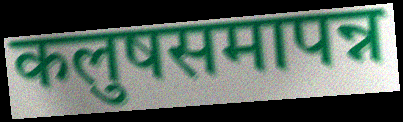
कलुषसमापन्न